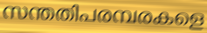
സന്തതിപരമ്പരകളെ